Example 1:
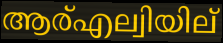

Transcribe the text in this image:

ആര്എല്വിയില്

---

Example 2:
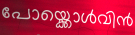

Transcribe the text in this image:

പോയ്ക്കൊൾവിൻ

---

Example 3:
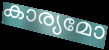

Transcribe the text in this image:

കാര്യമോ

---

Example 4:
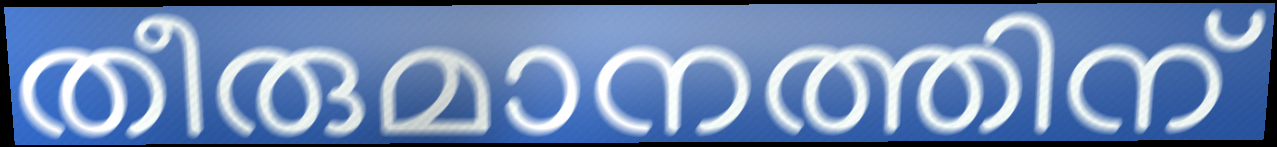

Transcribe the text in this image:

തീരുമാനത്തിന്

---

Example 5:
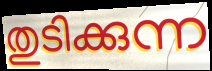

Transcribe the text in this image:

തുടിക്കുന്ന